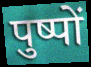
पुष्पों